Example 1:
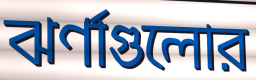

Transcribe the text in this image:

ঝর্ণাগুলোর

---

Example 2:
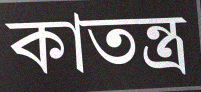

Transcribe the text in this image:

কাতন্ত্র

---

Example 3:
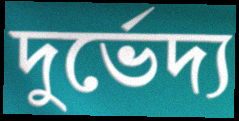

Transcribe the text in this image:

দুর্ভেদ্য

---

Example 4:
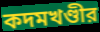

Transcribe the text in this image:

কদমখণ্ডীর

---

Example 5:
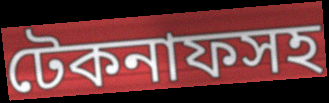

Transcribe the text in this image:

টেকনাফসহ